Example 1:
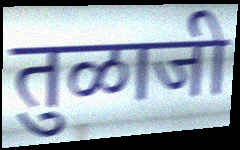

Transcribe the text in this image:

तुळाजी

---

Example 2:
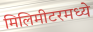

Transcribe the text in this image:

मिलिमीटरमध्ये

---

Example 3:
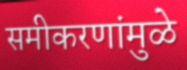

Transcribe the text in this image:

समीकरणांमुळे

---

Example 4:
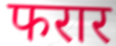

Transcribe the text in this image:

फरार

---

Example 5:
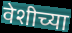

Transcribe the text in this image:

वेशीच्या